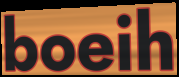
boeih